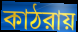
কাঠরায়